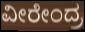
ವೀರೇಂದ್ರ